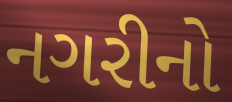
નગરીનો